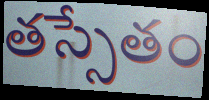
తస్సేతం